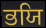
ਭਯਿ